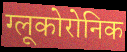
ग्लूकोरोनिक